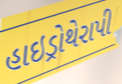
હાઇડ્રોથેરાપી